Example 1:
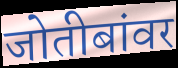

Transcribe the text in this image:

जोतीबांवर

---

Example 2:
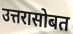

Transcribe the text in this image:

उत्तरासोबत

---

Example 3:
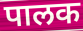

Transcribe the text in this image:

पालक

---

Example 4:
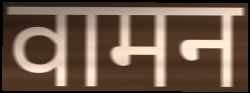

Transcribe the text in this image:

वामन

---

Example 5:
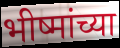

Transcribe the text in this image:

भीष्मांच्या